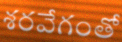
శరవేగంతో